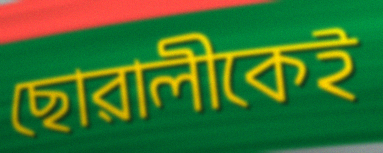
ছোৱালীকেই